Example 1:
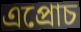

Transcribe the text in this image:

এপ্রোচ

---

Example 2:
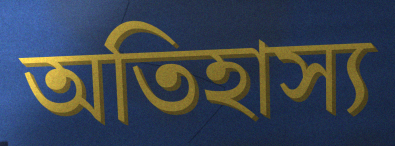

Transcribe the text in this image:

অতিহাস্য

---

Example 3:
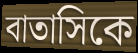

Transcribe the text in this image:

বাতাসিকে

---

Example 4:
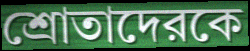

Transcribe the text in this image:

শ্রোতাদেরকে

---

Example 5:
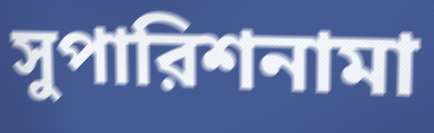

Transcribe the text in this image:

সুপারিশনামা